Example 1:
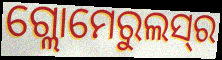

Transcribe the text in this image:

ଗ୍ଲୋମେରୁଲସ୍‌ର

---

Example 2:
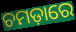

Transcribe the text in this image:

ଚମଡ଼ାରେ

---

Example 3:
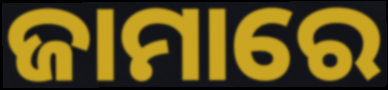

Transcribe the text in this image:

ଜାମାରେ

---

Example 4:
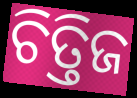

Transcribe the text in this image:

ଚିତ୍ତିଜ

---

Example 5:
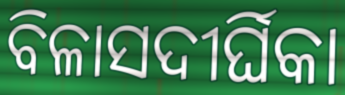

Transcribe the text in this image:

ବିଳାସଦୀର୍ଘିକା